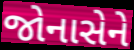
જોનાસેને